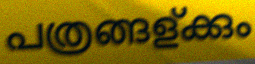
പത്രങ്ങള്ക്കും